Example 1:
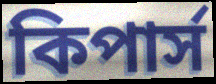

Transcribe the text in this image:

কিপার্স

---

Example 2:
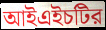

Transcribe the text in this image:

আইএইচটির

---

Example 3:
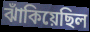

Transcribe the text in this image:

ঝাঁকিয়েছিল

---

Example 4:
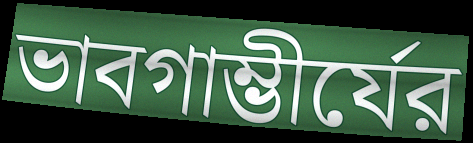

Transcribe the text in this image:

ভাবগাম্ভীর্যের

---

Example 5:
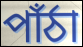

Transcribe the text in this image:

পাঁঠা